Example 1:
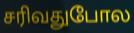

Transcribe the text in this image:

சரிவதுபோல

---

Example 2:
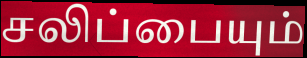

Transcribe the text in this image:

சலிப்பையும்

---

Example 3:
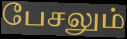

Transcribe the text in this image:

பேசலும்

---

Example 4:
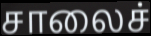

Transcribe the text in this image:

சாலைச்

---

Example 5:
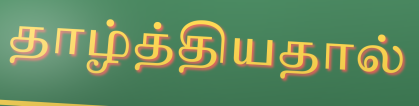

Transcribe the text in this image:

தாழ்த்தியதால்